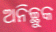
ଅନିଚ୍ଛୁକ